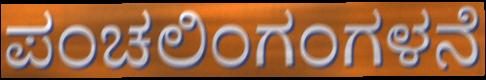
ಪಂಚಲಿಂಗಂಗಳನೆ